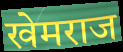
खेमराज